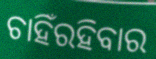
ଚାହିଁରହିବାର